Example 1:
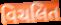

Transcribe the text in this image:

વિચલિત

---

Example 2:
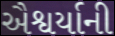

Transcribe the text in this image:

ઐશ્વર્યાની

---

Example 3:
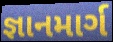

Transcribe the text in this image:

જ્ઞાનમાર્ગ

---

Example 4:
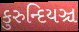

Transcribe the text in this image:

કુરુન્દિયઞ્ચ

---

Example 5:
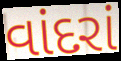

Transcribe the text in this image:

વાંદરાં